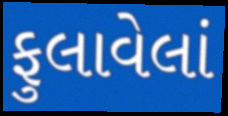
ફુલાવેલાં